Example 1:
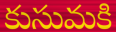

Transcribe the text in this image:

కుసుమకి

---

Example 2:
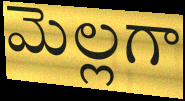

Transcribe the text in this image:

మెల్లగా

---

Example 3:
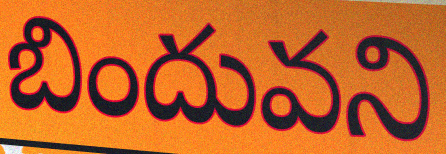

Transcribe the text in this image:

బిందువని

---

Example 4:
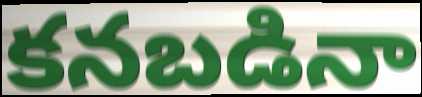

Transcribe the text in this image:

కనబడినా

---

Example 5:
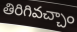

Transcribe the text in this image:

తిరిగివచ్చాం